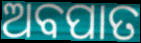
ଅବପାତ